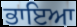
ਭਾਇਆ